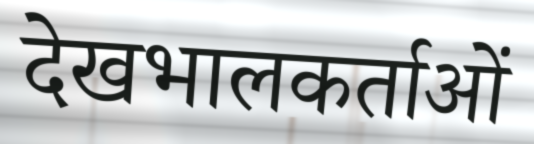
देखभालकर्ताओं